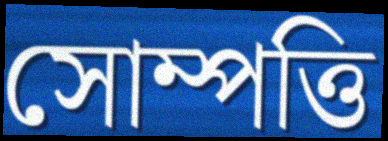
সোম্পত্তি